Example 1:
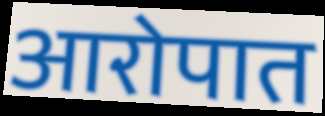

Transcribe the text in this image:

आरोपात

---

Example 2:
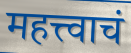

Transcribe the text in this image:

महत्त्वाचं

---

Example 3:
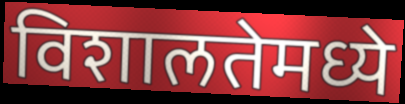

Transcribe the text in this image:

विशालतेमध्ये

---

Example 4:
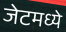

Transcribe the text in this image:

जेटमध्ये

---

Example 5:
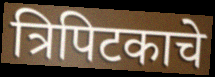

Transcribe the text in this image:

त्रिपिटकाचे